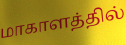
மாகாளத்தில்